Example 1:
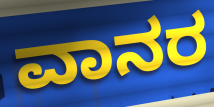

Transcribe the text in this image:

ವಾನರ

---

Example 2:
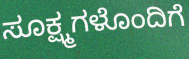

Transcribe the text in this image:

ಸೂಕ್ಷ್ಮಗಳೊಂದಿಗೆ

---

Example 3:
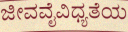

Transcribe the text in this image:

ಜೀವವೈವಿಧ್ಯತೆಯ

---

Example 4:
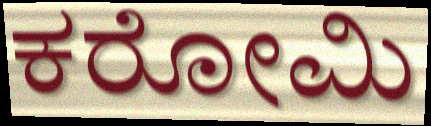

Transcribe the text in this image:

ಕರೋಮಿ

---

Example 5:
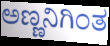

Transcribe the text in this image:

ಅಣ್ಣನಿಗಿಂತ